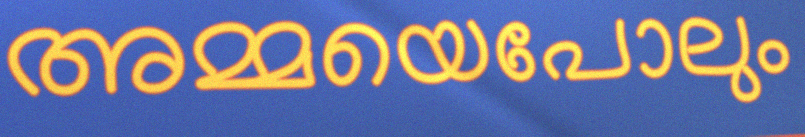
അമ്മയെപോലും